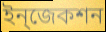
ইন্‌জেকশন